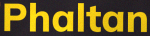
Phaltan